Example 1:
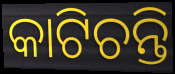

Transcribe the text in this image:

କାଟିଚନ୍ତି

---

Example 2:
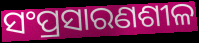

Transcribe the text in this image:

ସଂପ୍ରସାରଣଶୀଳ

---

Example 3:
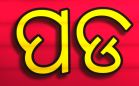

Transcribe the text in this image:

ପଡ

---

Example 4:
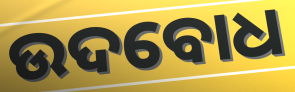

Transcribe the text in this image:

ଉଦବୋଧ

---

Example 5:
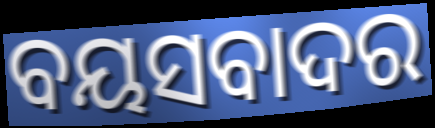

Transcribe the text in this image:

ବୟସବାଦର